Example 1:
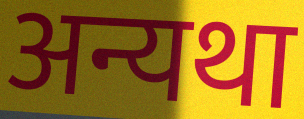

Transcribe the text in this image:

अन्यथा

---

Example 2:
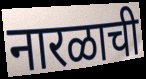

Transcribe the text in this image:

नारळाची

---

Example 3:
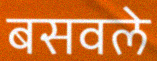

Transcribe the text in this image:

बसवले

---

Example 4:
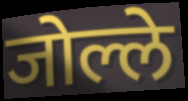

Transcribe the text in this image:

जोल्ले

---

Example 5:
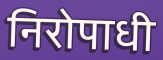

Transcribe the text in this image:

निरोपाधी